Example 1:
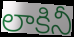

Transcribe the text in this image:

లాకినీ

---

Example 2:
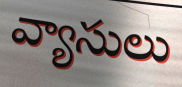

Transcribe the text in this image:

వ్యాసులు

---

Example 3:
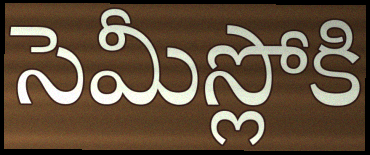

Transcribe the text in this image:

సెమీస్లోకి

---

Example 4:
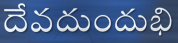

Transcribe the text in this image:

దేవదుందుభి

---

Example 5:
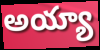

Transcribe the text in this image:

అయ్యా